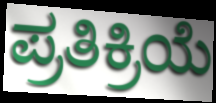
ಪ್ರತಿಕ್ರಿಯೆ